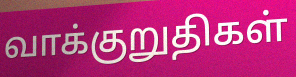
வாக்குறுதிகள்